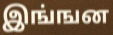
இங்ஙன